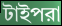
টাইপরা